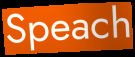
Speach